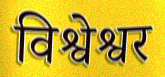
विश्वेश्वर